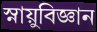
স্নায়ুবিজ্ঞান